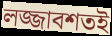
লজ্জাবশতই